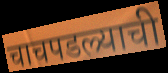
चाचपडल्याची